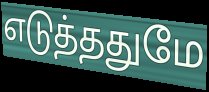
எடுத்ததுமே